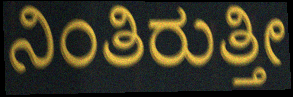
ನಿಂತಿರುತ್ತೀ